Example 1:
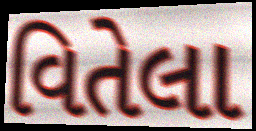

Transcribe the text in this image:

વિતેલા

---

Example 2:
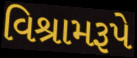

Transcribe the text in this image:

વિશ્રામરૂપે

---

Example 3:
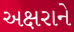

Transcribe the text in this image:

અક્ષરાને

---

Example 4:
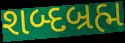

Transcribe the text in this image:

શબ્દબ્રહ્મ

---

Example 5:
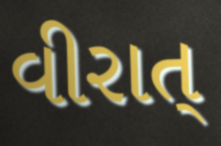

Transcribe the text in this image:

વીરાત્